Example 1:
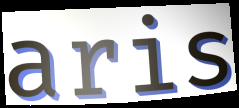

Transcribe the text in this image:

aris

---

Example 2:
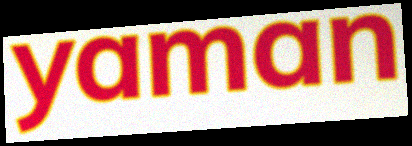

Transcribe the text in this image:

yaman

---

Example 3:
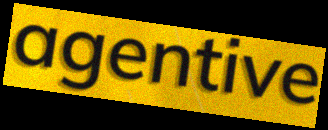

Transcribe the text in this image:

agentive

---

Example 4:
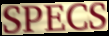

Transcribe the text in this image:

SPECS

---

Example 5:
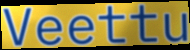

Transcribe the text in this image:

Veettu